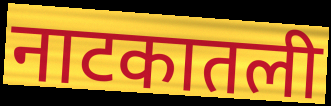
नाटकातली